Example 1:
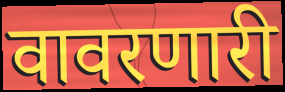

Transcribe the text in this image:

वावरणारी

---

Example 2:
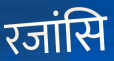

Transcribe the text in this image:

रजांसि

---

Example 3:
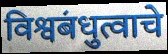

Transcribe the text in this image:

विश्वबंधुत्वाचे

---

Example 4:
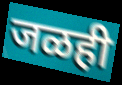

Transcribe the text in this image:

जळही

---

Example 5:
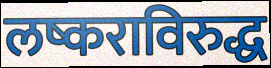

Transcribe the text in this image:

लष्कराविरुद्ध